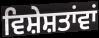
ਵਿਸ਼ੇਸ਼ਤਾਂਵਾਂ